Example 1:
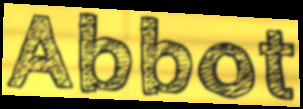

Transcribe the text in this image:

Abbot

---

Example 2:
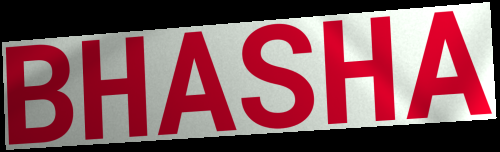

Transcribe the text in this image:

BHASHA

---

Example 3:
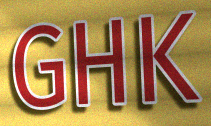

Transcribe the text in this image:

GHK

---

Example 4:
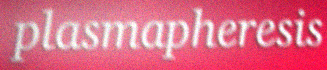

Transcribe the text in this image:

plasmapheresis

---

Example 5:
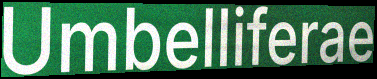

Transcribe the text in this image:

Umbelliferae